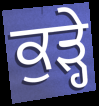
ਕੁੜ੍ਹੇ